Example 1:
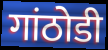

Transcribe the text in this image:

गांठोडी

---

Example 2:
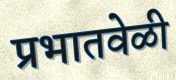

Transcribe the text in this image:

प्रभातवेळी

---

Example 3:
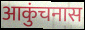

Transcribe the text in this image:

आकुंचनास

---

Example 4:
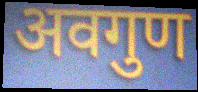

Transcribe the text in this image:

अवगुण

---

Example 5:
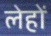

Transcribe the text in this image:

लेहों